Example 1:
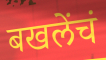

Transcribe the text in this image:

बखलेंचं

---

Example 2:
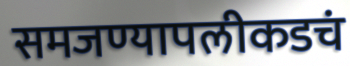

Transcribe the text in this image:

समजण्यापलीकडचं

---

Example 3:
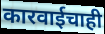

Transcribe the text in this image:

कारवाईचाही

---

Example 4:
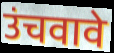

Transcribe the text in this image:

उंचवावे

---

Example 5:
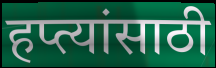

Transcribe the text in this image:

हप्त्यांसाठी